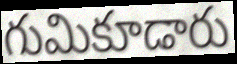
గుమికూడారు